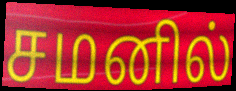
சமனில்